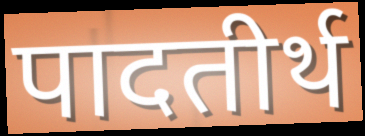
पादतीर्थ